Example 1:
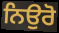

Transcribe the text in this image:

ਨਿਉਰੋ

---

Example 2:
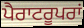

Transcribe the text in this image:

ਪੈਰਾਟਰੂਪਰਾਂ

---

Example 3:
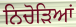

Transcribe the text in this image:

ਨਿਚੋੜਿਆਂ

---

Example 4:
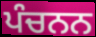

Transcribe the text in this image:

ਪੰਚਨਨ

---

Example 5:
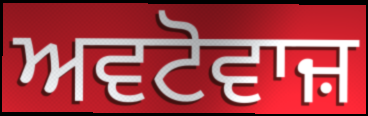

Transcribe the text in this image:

ਅਵਟੋਵਾਜ਼